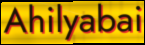
Ahilyabai